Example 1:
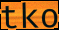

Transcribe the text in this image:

tko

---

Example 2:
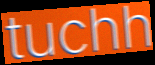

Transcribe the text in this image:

tuchh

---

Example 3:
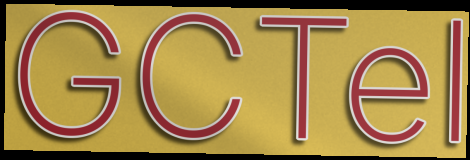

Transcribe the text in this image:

GCTel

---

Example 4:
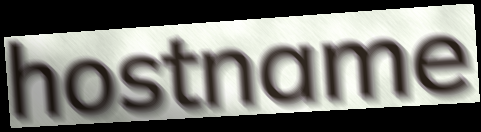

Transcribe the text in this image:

hostname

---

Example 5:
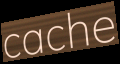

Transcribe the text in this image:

cache